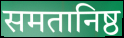
समतानिष्ठ